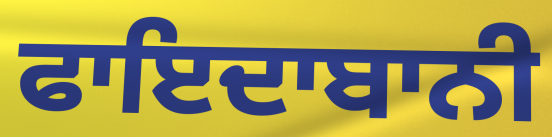
ਫਾਇਦਾਬਾਨੀ